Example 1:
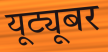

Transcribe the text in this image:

यूट्यूबर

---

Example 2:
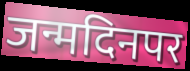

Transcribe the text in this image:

जन्मदिनपर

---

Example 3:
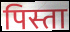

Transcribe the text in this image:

पिस्ता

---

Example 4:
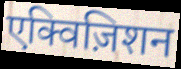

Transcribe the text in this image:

एक्विज़िशन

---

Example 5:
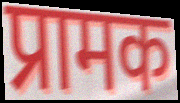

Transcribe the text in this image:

प्रामक